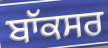
ਬਾੱਕਸਰ